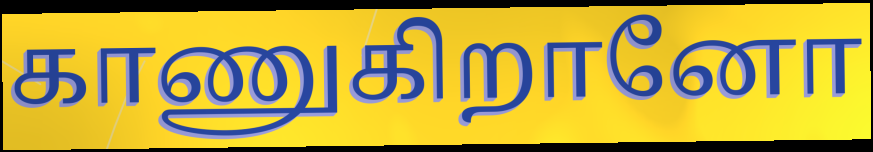
காணுகிறானோ